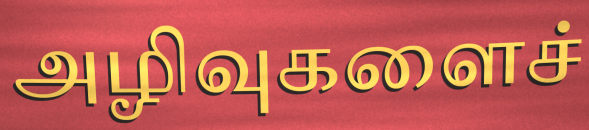
அழிவுகளைச்